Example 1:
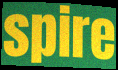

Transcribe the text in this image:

spire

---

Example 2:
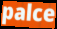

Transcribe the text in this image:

palce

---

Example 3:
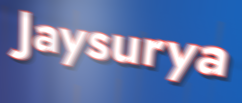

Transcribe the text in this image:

Jaysurya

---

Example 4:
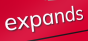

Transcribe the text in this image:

expands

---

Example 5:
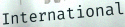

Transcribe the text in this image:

International